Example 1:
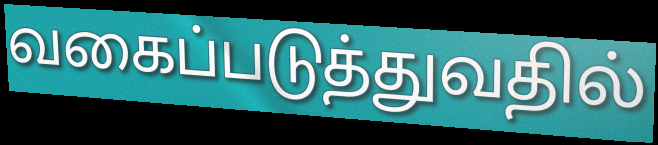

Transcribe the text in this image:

வகைப்படுத்துவதில்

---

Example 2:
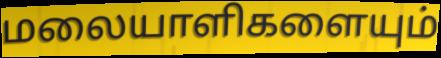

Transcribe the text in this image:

மலையாளிகளையும்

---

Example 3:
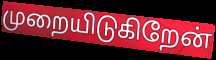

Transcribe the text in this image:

முறையிடுகிறேன்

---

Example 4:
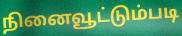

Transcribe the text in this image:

நினைவூட்டும்படி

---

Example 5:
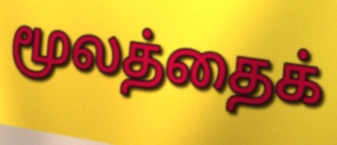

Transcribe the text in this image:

மூலத்தைக்